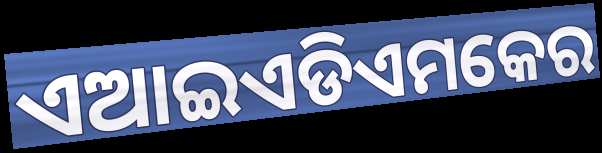
ଏଆଇଏଡିଏମକେର